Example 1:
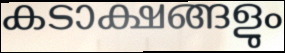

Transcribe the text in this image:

കടാക്ഷങ്ങളും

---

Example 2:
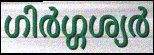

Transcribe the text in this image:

ഗിർഗ്ഗശ്യർ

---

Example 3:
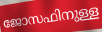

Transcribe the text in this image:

ജോസഫിനുള്ള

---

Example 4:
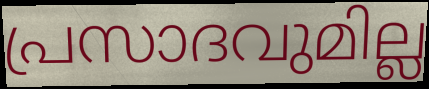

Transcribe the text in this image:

പ്രസാദവുമില്ല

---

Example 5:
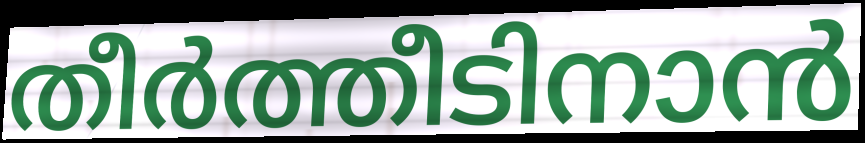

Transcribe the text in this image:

തീർത്തീടിനാൻ